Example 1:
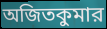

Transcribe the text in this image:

অজিতকুমার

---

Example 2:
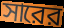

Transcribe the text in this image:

সারের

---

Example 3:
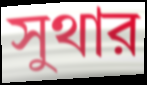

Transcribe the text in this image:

সুথার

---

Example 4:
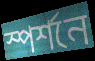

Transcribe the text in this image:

স্পর্শনে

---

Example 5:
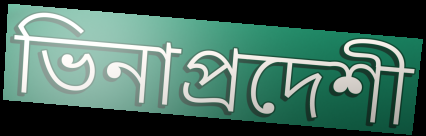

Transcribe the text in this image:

ভিনাপ্রদেশী